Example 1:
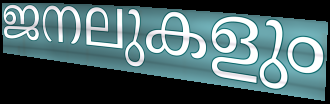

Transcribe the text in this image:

ജനലുകളും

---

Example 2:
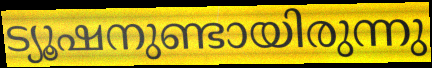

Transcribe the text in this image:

ട്യൂഷനുണ്ടായിരുന്നു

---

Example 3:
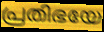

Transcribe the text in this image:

പ്രതിഭയേ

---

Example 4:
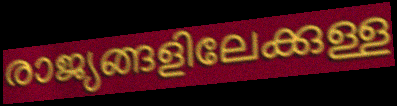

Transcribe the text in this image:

രാജ്യങ്ങളിലേക്കുള്ള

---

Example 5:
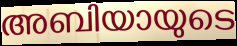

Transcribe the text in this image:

അബിയായുടെ